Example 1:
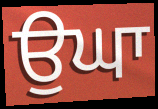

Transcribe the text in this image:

ਉਘਾ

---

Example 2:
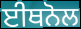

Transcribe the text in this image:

ਈਥਨੋਲ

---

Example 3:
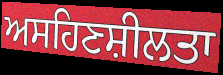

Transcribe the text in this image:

ਅਸਹਿਣਸ਼ੀਲਤਾ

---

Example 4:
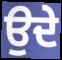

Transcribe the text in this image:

ਉਦੇ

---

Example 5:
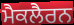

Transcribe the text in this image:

ਮੈਕਲੈਰਨ